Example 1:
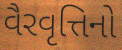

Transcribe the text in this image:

વૈરવૃત્તિનો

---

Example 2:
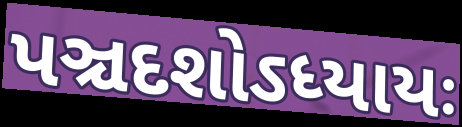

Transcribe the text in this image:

પઞ્ચદશોઽધ્યાયઃ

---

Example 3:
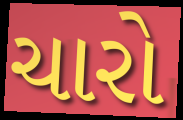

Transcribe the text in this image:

ચારો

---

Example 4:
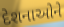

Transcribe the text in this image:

દેશનાઓને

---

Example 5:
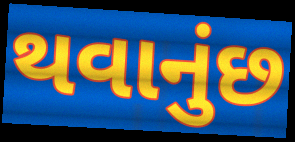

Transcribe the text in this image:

થવાનુંછ